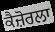
ਕੈਜ਼ੋਰਲਾ